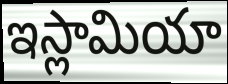
ఇస్లామియా